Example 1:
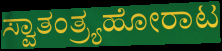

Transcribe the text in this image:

ಸ್ವಾತಂತ್ರ್ಯಹೋರಾಟ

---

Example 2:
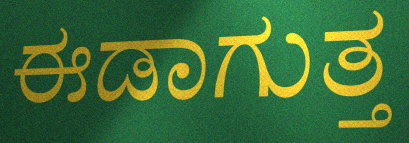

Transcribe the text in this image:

ಈಡಾಗುತ್ತ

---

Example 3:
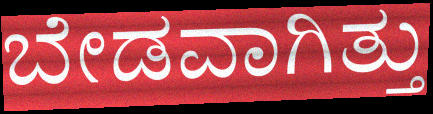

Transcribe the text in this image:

ಬೇಡವಾಗಿತ್ತು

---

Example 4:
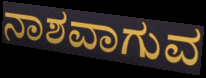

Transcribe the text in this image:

ನಾಶವಾಗುವ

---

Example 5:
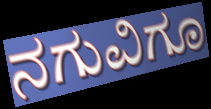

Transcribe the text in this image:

ನಗುವಿಗೂ